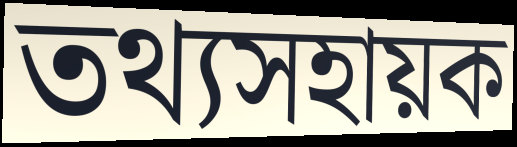
তথ্যসহায়ক